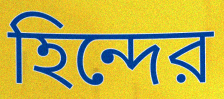
হিন্দের